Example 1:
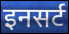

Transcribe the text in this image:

इनसर्ट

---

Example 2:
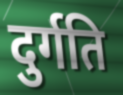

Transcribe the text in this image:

दुर्गति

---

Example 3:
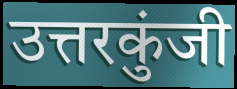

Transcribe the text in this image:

उत्तरकुंजी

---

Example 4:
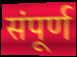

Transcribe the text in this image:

संपूर्ण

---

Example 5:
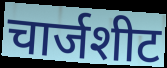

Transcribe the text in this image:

चार्जशीट